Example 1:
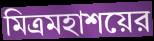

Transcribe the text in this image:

মিত্রমহাশয়ের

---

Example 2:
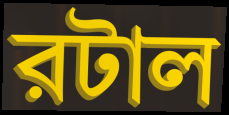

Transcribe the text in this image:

রটাল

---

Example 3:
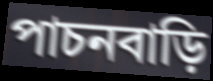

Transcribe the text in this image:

পাচনবাড়ি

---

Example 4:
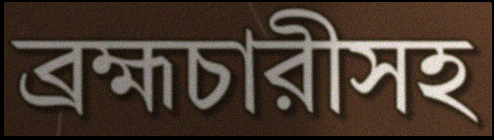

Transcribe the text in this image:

ব্রহ্মচারীসহ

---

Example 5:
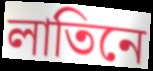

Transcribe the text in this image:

লাতিনে